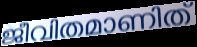
ജീവിതമാണിത്